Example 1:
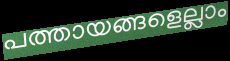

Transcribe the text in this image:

പത്തായങ്ങളെല്ലാം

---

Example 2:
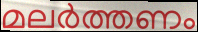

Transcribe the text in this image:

മലർത്തണം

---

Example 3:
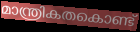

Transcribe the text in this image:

മാന്ത്രികതകൊണ്ട്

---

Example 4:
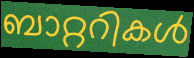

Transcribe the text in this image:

ബാറ്ററികൾ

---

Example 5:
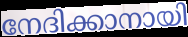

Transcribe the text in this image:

നേദിക്കാനായി